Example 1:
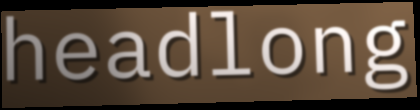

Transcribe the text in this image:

headlong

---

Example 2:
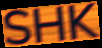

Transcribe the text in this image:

SHK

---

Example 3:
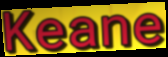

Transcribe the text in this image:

Keane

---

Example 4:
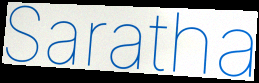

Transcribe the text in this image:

Saratha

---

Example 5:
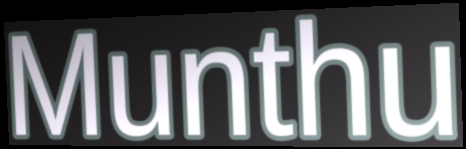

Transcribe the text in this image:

Munthu